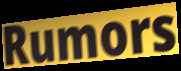
Rumors